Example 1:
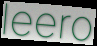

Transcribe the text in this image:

leero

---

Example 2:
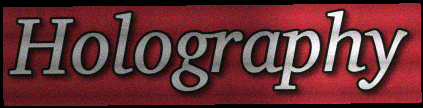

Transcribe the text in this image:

Holography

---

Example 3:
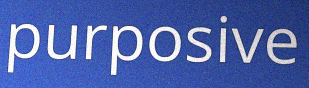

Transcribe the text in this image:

purposive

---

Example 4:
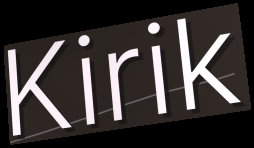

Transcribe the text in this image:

Kirik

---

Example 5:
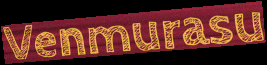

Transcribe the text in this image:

Venmurasu